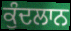
ਕੁੰਦਲਾਨ